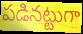
పడినట్టుగా